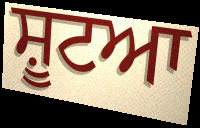
ਸ਼ੂਟਆ